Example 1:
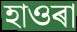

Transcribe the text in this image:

হাওৰা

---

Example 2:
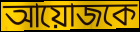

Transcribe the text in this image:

আয়োজকে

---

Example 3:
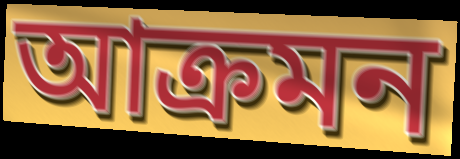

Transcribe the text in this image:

আক্ৰমন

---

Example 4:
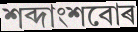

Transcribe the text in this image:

শব্দাংশবোৰ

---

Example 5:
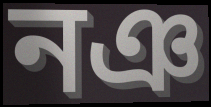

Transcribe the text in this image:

নঞ